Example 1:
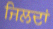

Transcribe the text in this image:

ਜਿਲਦਾਂ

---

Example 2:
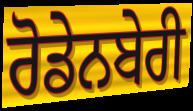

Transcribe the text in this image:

ਰੋਡੇਨਬੇਰੀ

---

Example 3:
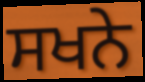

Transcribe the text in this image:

ਸਖਨੇ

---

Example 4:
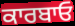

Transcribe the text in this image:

ਕਾਰਬਾਓ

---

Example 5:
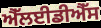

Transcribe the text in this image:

ਐੱਲਈਡੀਐੱਸ